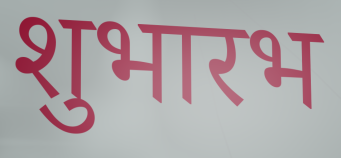
शुभारभ